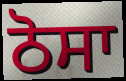
ਠੋਸਾ